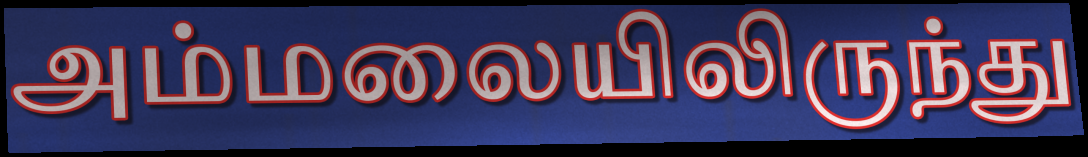
அம்மலையிலிருந்து